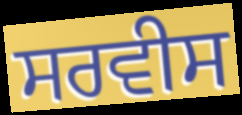
ਸਰਵੀਸ